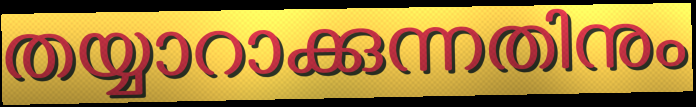
തയ്യാറാക്കുന്നതിനും